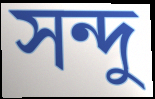
সন্দু